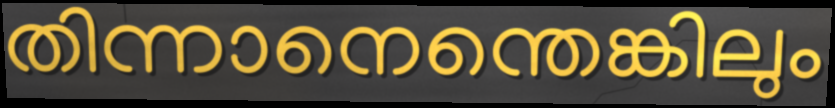
തിന്നാനെന്തെങ്കിലും